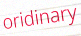
oridinary